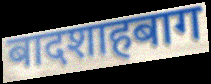
बादशाहबाग